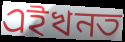
এইখনত